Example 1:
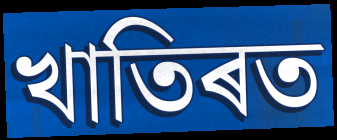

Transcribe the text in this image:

খাতিৰত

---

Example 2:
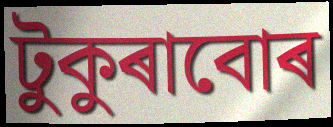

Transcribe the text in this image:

টুকুৰাবোৰ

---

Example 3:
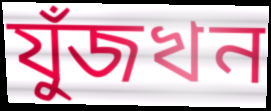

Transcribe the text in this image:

যুঁজখন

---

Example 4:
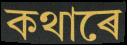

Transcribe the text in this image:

কথাৰে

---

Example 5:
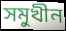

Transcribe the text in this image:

সমুখীন